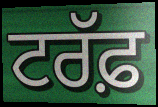
ਟਰੱਫ਼